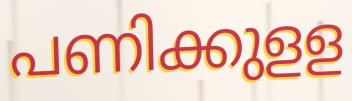
പണിക്കുളള